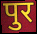
पुर